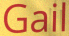
Gail